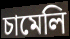
চামেলি